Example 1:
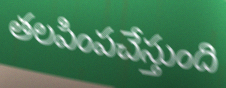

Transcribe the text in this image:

తలపింపచేస్తుంది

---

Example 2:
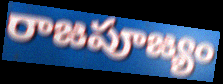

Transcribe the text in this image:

రాజపూజ్యం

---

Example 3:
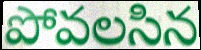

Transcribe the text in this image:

పోవలసిన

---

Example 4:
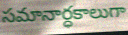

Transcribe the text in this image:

సమానార్ధకాలుగా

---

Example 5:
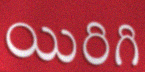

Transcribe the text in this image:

యిరిగి